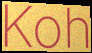
Koh